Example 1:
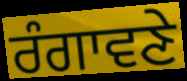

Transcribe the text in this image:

ਰੰਗਾਵਣੇ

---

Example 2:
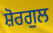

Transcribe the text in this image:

ਸ਼ੋਰਗੁਲ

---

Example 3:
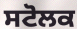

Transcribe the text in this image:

ਸਟੋਲਕ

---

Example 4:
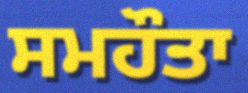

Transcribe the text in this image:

ਸਮਹੌਤਾ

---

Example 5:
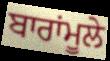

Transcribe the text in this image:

ਬਾਰਾਂਮੂਲੇ